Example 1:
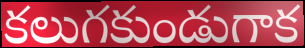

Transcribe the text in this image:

కలుగకుండుగాక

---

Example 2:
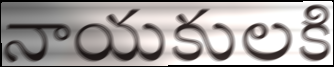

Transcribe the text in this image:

నాయకులకి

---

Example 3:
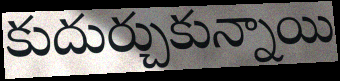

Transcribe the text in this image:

కుదుర్చుకున్నాయి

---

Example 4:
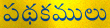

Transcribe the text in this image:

పథకములు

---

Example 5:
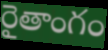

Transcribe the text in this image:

రైతాంగం